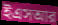
ইএসআর